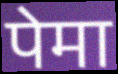
पेमा